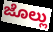
ಜೊಲ್ಲು